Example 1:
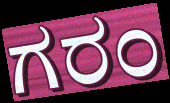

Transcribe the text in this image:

ಗರಂ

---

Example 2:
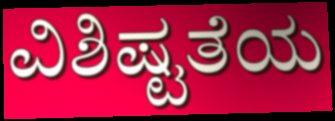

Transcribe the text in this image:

ವಿಶಿಷ್ಟತೆಯ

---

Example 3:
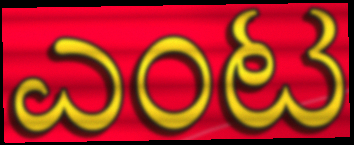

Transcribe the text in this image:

ಎಂಟ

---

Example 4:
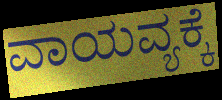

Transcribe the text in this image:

ವಾಯವ್ಯಕ್ಕೆ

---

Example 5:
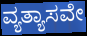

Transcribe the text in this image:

ವ್ಯತ್ಯಾಸವೇ